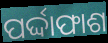
ପର୍ଦ୍ଦାଫାଶ